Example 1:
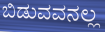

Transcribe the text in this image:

ಬಿಡುವವನಲ್ಲ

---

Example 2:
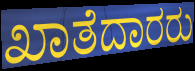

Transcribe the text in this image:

ಖಾತೆದಾರರು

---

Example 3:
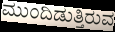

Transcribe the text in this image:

ಮುಂದಿಡುತ್ತಿರುವ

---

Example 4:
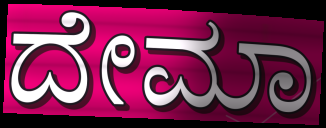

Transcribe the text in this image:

ದೇಮಾ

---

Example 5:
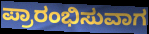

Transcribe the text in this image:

ಪ್ರಾರಂಭಿಸುವಾಗ